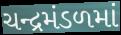
ચન્દ્રમંડળમાં